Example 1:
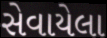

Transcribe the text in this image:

સેવાયેલા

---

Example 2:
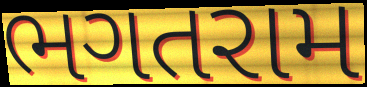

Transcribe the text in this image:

ભગતરામ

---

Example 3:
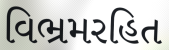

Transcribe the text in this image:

વિભ્રમરહિત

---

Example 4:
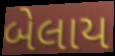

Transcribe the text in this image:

બેલાય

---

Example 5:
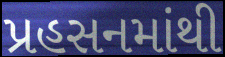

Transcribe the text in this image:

પ્રહસનમાંથી